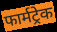
फार्मट्रेक